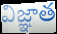
విజ్ఞాత